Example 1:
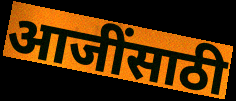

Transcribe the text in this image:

आजींसाठी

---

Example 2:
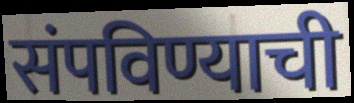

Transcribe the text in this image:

संपविण्याची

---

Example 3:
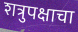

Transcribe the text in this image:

शत्रुपक्षाचा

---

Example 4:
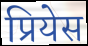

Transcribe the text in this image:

प्रियेस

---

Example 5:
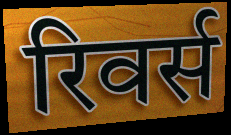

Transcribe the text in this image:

रिवर्स